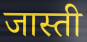
जास्ती